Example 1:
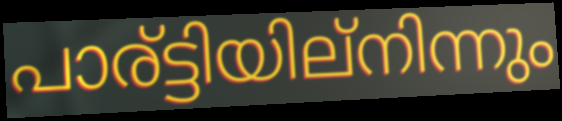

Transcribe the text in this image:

പാര്ട്ടിയില്നിന്നും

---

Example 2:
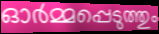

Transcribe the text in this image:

ഓർമ്മപ്പെടുത്തും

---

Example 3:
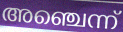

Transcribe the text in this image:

അഞ്ചെന്ന്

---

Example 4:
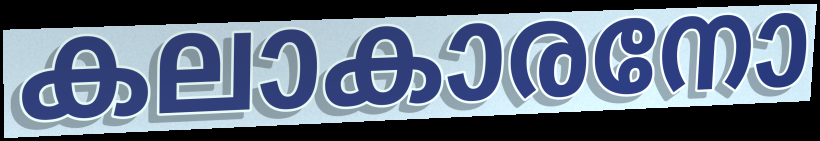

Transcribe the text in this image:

കലാകാരനോ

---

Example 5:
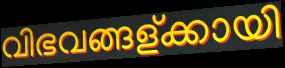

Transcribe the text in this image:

വിഭവങ്ങള്ക്കായി